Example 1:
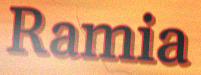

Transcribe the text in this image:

Ramia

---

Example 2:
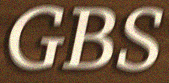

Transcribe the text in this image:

GBS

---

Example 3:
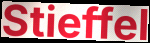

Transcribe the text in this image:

Stieffel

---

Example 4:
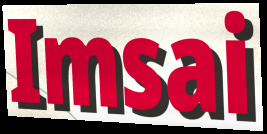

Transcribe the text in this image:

Imsai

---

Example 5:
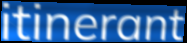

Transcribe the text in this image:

itinerant